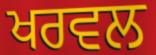
ਖਰਵਲ